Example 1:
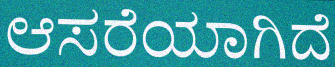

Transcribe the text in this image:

ಆಸರೆಯಾಗಿದೆ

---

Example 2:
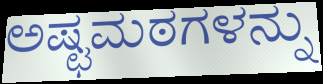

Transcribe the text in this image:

ಅಷ್ಟಮಠಗಳನ್ನು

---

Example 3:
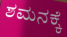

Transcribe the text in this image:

ಶಮನಕ್ಕೆ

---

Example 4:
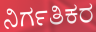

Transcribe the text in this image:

ನಿರ್ಗತಿಕರ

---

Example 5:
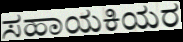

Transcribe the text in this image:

ಸಹಾಯಕಿಯರ